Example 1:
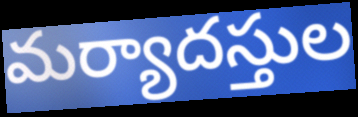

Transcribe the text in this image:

మర్యాదస్తుల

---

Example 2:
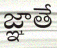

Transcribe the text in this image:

జ్ఞాతే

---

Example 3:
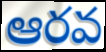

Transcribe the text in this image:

ఆరవ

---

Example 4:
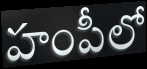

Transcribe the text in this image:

హంపీలో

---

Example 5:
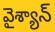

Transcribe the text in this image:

వైశ్యాన్